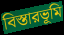
বিস্তারভূমি